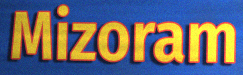
Mizoram